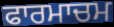
ਫਾਰਮਾਚਮ